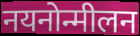
नयनोन्मीलन